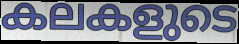
കലകളുടെ